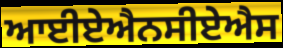
ਆਈਏਐਨਸੀਏਐਸ